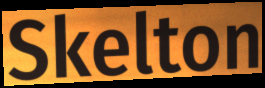
Skelton